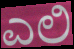
ಎಲಿ